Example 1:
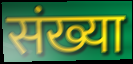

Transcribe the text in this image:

संख्‍या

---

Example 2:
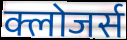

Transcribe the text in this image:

क्लोजर्स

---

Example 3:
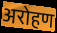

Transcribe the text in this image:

अरोहण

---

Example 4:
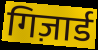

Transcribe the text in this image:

गिज़ार्ड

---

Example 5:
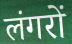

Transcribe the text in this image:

लंगरों